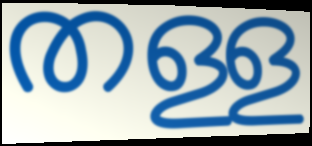
തള്ള